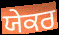
ਯੇਕਰ